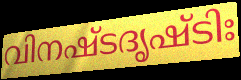
വിനഷ്ടദൃഷ്ടിഃ